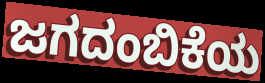
ಜಗದಂಬಿಕೆಯ